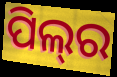
ପିଲ୍‌ର